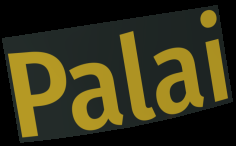
Palai